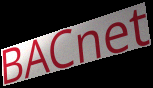
BACnet